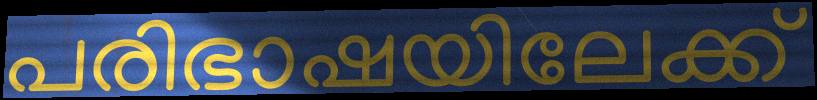
പരിഭാഷയിലേക്ക്